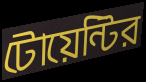
টোয়েন্টির